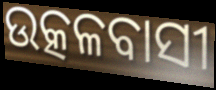
ଉତ୍କଳବାସୀ